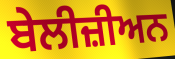
ਬੇਲੀਜ਼ੀਅਨ